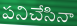
పనిచేసినా